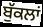
ਬੁੱਕਲਾਂ